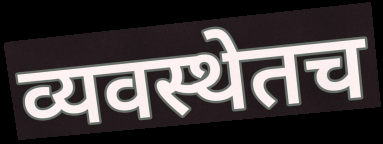
व्यवस्थेतच